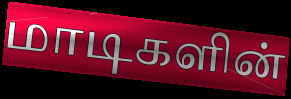
மாடிகளின்